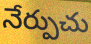
నేర్పుచు